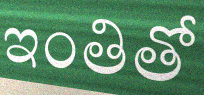
ఇంతితో